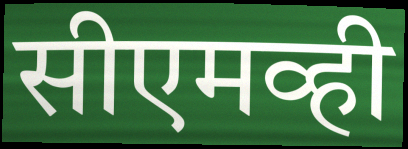
सीएमव्ही